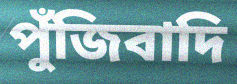
পুঁজিবাদি